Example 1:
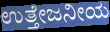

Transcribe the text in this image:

ಉತ್ತೇಜನೀಯ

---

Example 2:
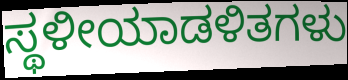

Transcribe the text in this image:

ಸ್ಥಳೀಯಾಡಳಿತಗಳು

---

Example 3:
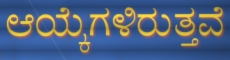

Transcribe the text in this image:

ಆಯ್ಕೆಗಳಿರುತ್ತವೆ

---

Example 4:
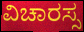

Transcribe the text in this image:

ವಿಚಾರಸ್ಸ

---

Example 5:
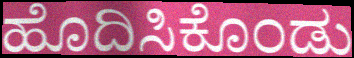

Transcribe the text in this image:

ಹೊದಿಸಿಕೊಂಡು